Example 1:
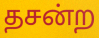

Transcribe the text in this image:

தசன்ற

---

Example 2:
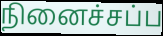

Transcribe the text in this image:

நினைச்சப்ப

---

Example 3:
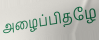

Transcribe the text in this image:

அழைப்பிதழே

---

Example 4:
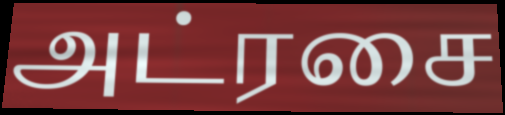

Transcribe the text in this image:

அட்ரசை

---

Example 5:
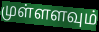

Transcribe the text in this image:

முள்ளளவும்